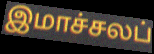
இமாச்சலப்